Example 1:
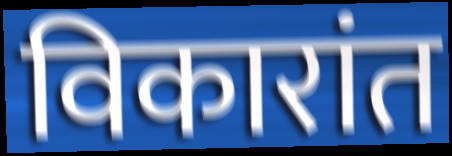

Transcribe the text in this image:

विकारांत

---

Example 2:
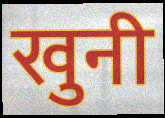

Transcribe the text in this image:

खुनी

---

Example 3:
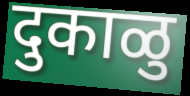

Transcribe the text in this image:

दुकाळु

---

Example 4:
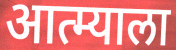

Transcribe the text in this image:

आत्म्याला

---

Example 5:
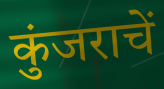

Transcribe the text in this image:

कुंजराचें